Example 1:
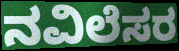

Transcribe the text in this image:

ನವಿಲೆಸರ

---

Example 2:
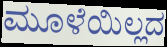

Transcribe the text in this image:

ಮೂಳೆಯಿಲ್ಲದ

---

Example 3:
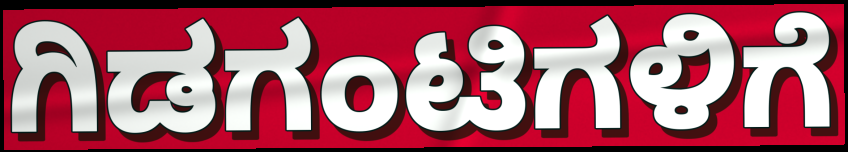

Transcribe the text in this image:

ಗಿಡಗಂಟಿಗಳಿಗೆ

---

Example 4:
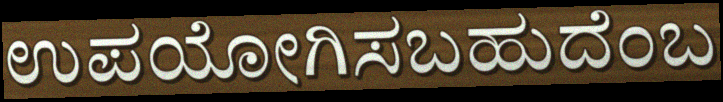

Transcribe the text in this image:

ಉಪಯೋಗಿಸಬಹುದೆಂಬ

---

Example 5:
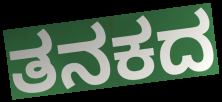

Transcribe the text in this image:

ತನಕದ